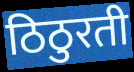
ठिठुरती